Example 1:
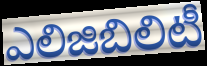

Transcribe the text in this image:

ఎలిజిబిలిటీ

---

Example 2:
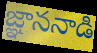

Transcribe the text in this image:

జ్ఞాననాడి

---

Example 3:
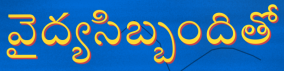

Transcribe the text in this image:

వైద్యసిబ్బందితో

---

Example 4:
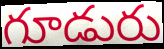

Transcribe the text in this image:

గూడురు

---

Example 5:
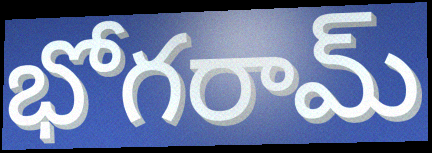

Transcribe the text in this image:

భోగరామ్